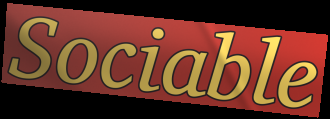
Sociable